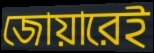
জোয়ারেই